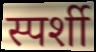
स्पर्शी